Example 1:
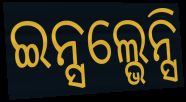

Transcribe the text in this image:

ଇନ୍ସଲ୍ଭେନ୍ସି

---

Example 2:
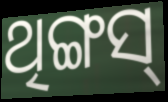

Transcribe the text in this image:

ଥିଙ୍ଗସ୍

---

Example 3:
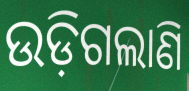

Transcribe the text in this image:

ଉଡ଼ିଗଲାଣି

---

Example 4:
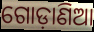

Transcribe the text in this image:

ଗୋଡ଼ାଣିଆ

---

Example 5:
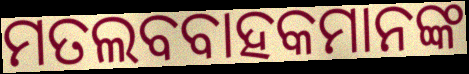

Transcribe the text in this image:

ମତଲବବାହକମାନଙ୍କ